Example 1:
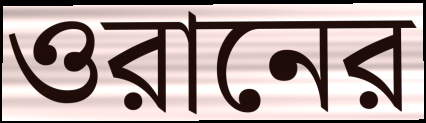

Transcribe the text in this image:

ওরানের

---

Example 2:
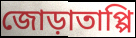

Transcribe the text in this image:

জোড়াতাপ্পি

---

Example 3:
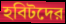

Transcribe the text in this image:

হবিটদের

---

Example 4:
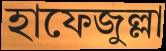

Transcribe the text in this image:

হাফেজুল্লা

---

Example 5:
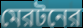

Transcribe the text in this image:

মেরটনের